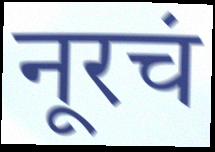
नूरचं